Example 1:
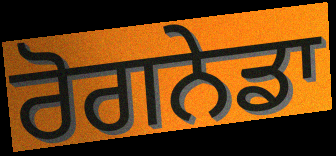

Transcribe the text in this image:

ਰੋਗਨੇਡਾ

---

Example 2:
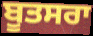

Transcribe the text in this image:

ਬੂਤਸਰਾ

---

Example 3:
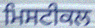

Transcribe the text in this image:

ਮਿਸਟੀਕਲ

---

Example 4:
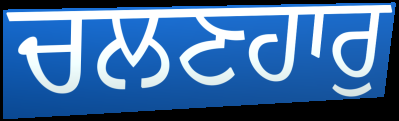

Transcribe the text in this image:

ਚਲਣਹਾਰੁ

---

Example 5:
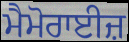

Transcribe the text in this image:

ਮੈਮੋਰਾਈਜ਼